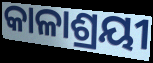
କାଳାଶ୍ରୟୀ